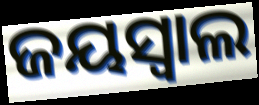
ଜୟସ୍ୱାଲ